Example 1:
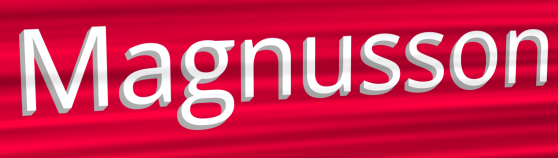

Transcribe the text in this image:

Magnusson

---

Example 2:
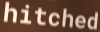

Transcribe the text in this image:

hitched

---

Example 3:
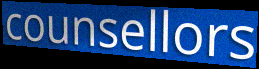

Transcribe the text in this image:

counsellors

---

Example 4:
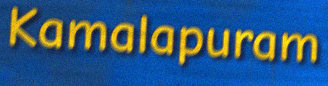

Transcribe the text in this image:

Kamalapuram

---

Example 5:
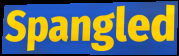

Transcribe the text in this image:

Spangled